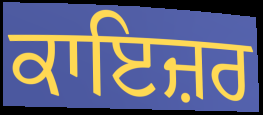
ਕਾਇਜ਼ਰ